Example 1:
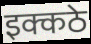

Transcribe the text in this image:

इक्कठे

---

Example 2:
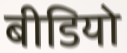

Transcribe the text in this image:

बीडियो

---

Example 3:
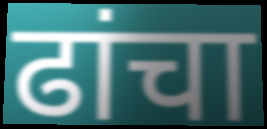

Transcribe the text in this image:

ढांचा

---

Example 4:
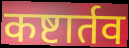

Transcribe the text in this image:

कष्टार्तव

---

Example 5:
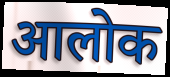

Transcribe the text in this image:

आलोक